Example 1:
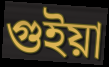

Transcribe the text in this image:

গুইয়া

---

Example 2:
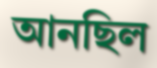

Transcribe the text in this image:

আনছিল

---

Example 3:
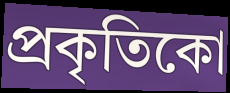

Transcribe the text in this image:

প্ৰকৃতিকো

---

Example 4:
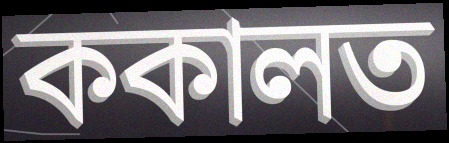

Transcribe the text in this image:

ককালত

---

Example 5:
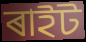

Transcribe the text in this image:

ৰাইট